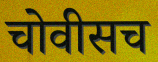
चोवीसच